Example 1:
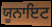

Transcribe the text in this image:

ਯੂਨਾਇਟ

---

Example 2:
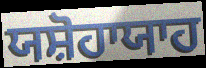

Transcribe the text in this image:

ਯਸ਼ੋਹਾਯਾਹ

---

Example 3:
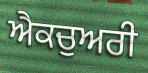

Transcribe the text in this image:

ਐਕਚੁਅਰੀ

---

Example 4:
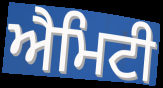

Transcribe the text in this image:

ਐਮਿਟੀ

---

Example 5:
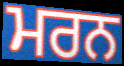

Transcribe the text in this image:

ਮਰਨ